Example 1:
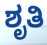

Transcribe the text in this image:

ಶೃತಿ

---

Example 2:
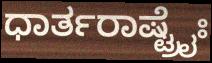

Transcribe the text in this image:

ಧಾರ್ತರಾಷ್ಟ್ರೈಃ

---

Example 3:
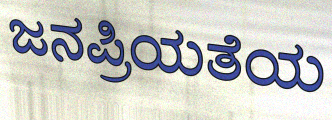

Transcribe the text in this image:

ಜನಪ್ರಿಯತೆಯ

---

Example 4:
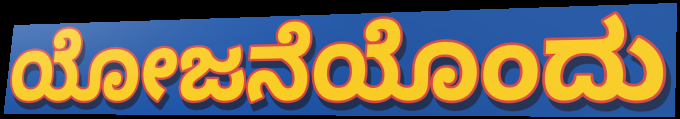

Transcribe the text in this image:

ಯೋಜನೆಯೊಂದು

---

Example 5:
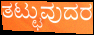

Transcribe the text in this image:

ತಟ್ಟುವುದರ